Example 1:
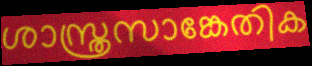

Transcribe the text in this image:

ശാസ്ത്രസാങ്കേതിക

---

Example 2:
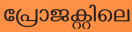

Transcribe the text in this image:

പ്രോജക്റ്റിലെ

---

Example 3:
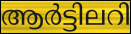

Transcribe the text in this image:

ആർട്ടിലറി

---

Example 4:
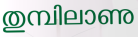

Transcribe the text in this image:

തുമ്പിലാണു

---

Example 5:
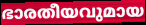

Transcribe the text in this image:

ഭാരതീയവുമായ